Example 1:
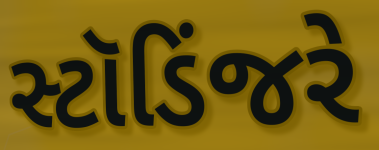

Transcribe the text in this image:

સ્ટૉડિંજરે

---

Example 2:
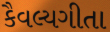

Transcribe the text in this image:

કૈવલ્યગીતા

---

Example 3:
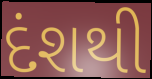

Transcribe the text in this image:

દંશથી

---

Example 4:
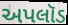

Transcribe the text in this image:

અપલૉડ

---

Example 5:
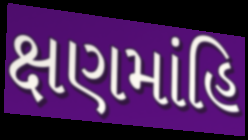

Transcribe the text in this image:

ક્ષણમાંહિ